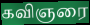
கவிஞரை